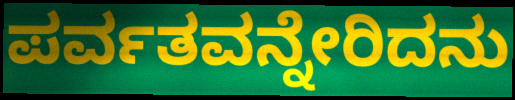
ಪರ್ವತವನ್ನೇರಿದನು